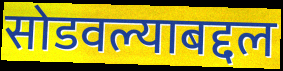
सोडवल्याबद्दल